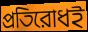
প্রতিরোধই